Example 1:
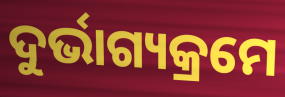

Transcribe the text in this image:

ଦୁର୍ଭାଗ୍ୟକ୍ରମେ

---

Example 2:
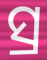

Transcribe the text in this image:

ସ୍ର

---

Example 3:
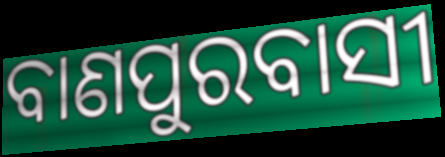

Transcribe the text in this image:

ବାଣପୁରବାସୀ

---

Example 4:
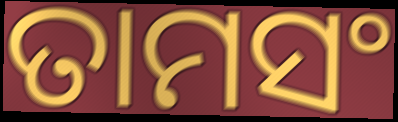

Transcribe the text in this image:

ତାମସଂ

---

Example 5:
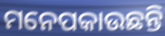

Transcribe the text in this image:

ମନେପକାଉଛନ୍ତି